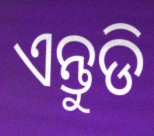
ଏନ୍ତୁଡି